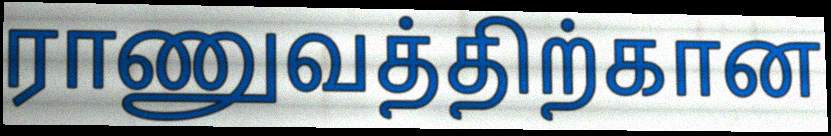
ராணுவத்திற்கான